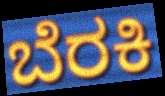
ಬೆರಕಿ